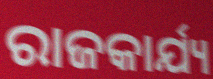
ରାଜକାର୍ଯ୍ୟ